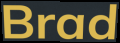
Brad